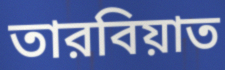
তারবিয়াত